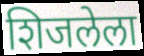
शिजलेला